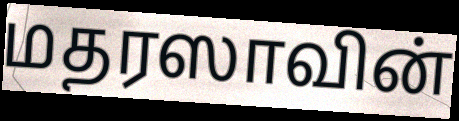
மதரஸாவின்